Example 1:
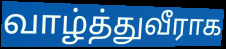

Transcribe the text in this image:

வாழ்த்துவீராக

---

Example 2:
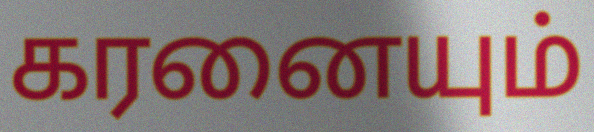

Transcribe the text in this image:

கரனையும்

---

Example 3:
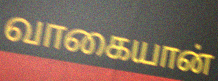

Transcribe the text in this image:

வாகையான்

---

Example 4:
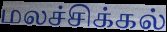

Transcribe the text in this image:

மலச்சிக்கல்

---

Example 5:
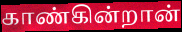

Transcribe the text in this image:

காண்கின்றான்